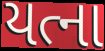
યત્ના